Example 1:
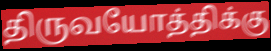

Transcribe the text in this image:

திருவயோத்திக்கு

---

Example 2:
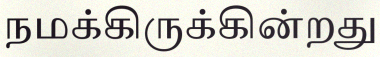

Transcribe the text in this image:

நமக்கிருக்கின்றது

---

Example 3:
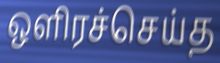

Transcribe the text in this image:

ஒளிரச்செய்த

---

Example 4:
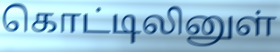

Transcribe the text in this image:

கொட்டிலினுள்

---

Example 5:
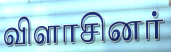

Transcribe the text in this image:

விளாசினர்